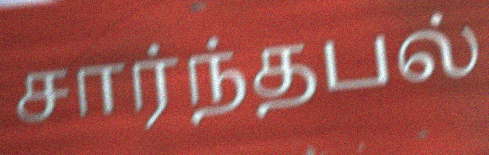
சார்ந்தபல்